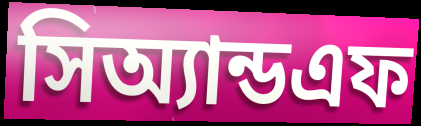
সিঅ্যান্ডএফ